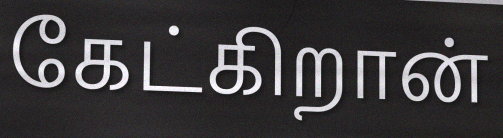
கேட்கிறான்